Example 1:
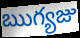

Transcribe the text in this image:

ఋగ్యజు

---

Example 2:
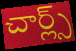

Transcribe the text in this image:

చార్ల్స్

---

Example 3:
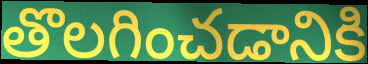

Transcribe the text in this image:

తొలగించడానికి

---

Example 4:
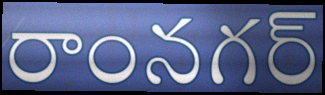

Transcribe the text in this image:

రాంనగర్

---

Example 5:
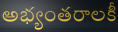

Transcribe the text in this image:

అభ్యంతరాలకీ